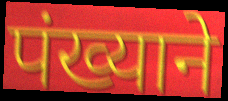
पंख्याने